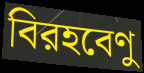
বিরহবেণু